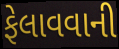
ફેલાવવાની